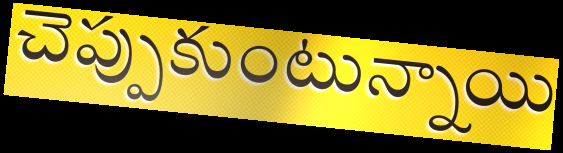
చెప్పుకుంటున్నాయి